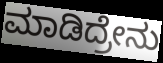
ಮಾಡಿದ್ರೇನು